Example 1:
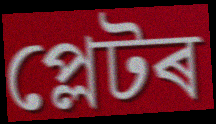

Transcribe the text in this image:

প্লেটৰ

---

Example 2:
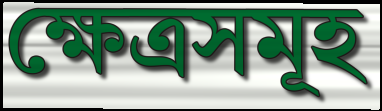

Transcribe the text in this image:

ক্ষেত্ৰসমূহ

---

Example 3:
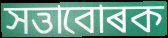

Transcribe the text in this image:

সত্তাবোৰক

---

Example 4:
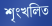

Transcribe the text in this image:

শৃংখলিত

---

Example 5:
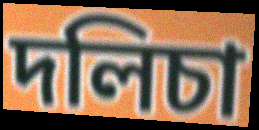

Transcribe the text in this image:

দলিচা